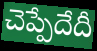
చెప్పేదేదీ